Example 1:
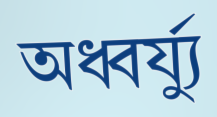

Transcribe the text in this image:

অধ্বর্য্যু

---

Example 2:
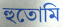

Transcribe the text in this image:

হুতোমি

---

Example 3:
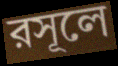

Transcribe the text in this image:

রসূলে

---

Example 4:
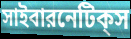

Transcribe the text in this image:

সাইবারনেটিক্‌স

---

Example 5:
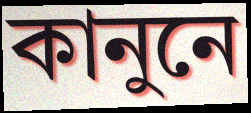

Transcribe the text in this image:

কানুনে